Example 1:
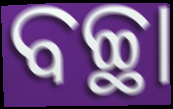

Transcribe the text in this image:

ବଚ୍ଛା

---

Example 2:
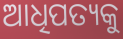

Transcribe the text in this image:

ଆଧିପତ୍ୟକୁ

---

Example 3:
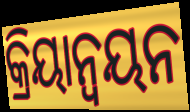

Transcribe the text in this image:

କ୍ରିୟାନ୍ଵୟନ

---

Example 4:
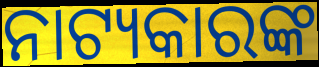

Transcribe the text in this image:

ନାଟ୍ୟକାରଙ୍କ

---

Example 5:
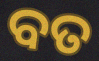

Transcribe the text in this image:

ବତ